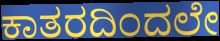
ಕಾತರದಿಂದಲೇ